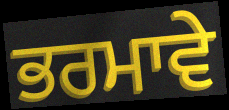
ਭਰਮਾਵੇ